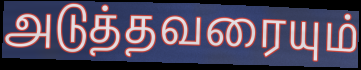
அடுத்தவரையும்